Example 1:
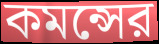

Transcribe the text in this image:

কমন্সের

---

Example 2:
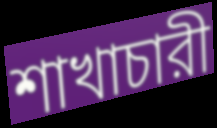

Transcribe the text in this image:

শাখাচারী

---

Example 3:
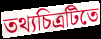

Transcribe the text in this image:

তথ্যচিত্রটিতে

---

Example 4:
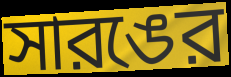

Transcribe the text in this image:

সারঙের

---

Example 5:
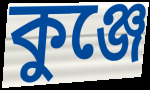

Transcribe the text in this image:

কুঞ্জে